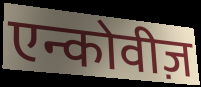
एन्कोवीज़